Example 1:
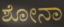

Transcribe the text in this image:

ಶೋನಾ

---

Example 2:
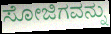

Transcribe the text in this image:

ಸೋಜಿಗವನ್ನು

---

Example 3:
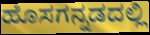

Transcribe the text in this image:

ಹೊಸಗನ್ನಡದಲ್ಲಿ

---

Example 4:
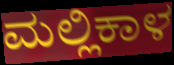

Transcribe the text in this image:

ಮಲ್ಲಿಕಾಳ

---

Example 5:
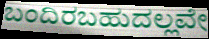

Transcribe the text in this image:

ಬಂದಿರಬಹುದಲ್ಲವೇ